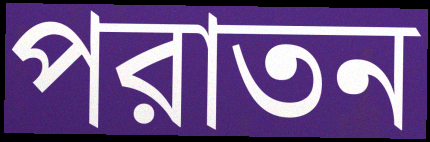
পরাতন